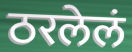
ठरलेलं